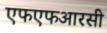
एफएफआरसी